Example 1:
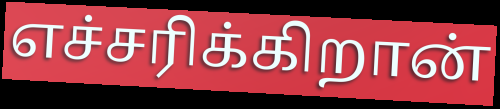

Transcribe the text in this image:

எச்சரிக்கிறான்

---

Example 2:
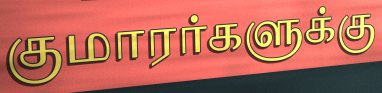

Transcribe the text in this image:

குமாரர்களுக்கு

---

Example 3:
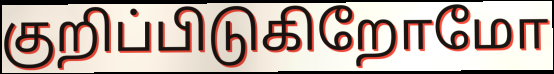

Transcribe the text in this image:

குறிப்பிடுகிறோமோ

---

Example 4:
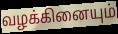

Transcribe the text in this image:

வழக்கினையும்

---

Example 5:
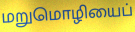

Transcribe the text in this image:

மறுமொழியைப்